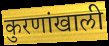
कुरणांखाली